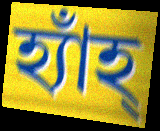
হ্যাঁহ্